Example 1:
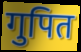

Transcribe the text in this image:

गुपित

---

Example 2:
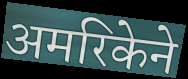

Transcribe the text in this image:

अमरिकेने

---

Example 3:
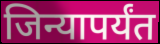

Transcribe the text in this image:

जिन्यापर्यंत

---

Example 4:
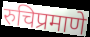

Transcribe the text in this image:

रुचिप्रमाणे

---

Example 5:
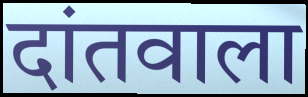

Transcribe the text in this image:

दांतवाला